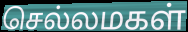
செல்லமகள்